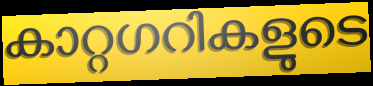
കാറ്റഗറികളുടെ